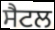
ਸੈਟਲ